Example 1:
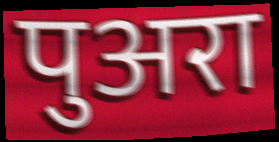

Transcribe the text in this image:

पुअरा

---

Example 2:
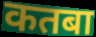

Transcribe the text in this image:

कतबा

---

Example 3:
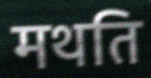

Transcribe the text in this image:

मथति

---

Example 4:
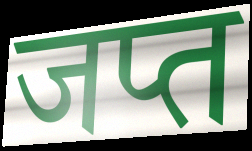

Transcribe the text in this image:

जप्त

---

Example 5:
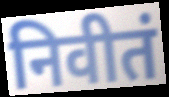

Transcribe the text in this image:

निवीतं